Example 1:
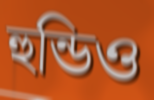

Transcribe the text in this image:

হুন্ডিও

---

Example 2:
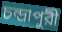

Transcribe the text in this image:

চন্দ্রাপুরী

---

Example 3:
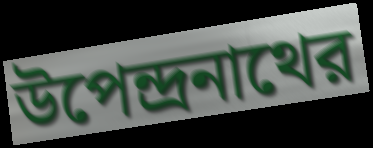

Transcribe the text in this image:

উপেন্দ্রনাথের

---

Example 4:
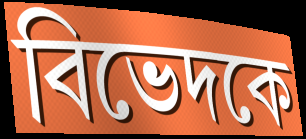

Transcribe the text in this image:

বিভেদকে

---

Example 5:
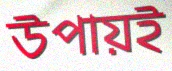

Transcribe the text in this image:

উপায়ই